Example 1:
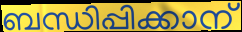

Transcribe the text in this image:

ബന്ധിപ്പിക്കാന്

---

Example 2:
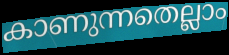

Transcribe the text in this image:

കാണുന്നതെല്ലാം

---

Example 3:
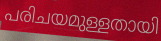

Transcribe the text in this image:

പരിചയമുള്ളതായി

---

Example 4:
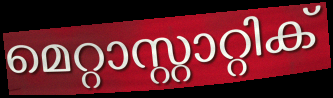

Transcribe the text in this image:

മെറ്റാസ്റ്റാറ്റിക്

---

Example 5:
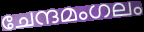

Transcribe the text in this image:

ചേന്ദമംഗലം